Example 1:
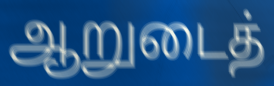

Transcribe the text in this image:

ஆறுடைத்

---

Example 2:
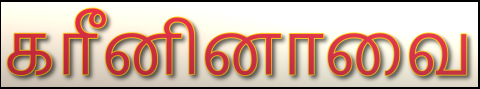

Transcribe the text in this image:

கரீனினாவை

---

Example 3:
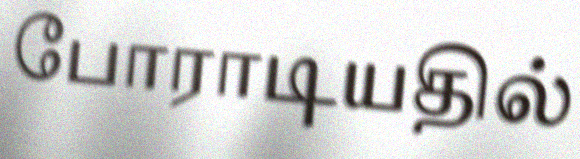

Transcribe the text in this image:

போராடியதில்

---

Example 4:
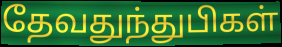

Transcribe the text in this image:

தேவதுந்துபிகள்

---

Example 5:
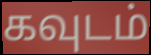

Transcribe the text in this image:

கவுடம்